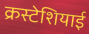
क्रस्टेशियाई